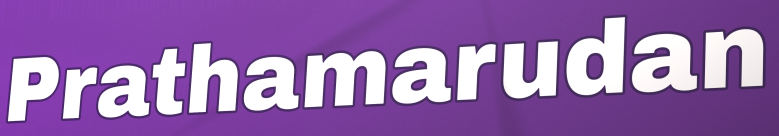
Prathamarudan